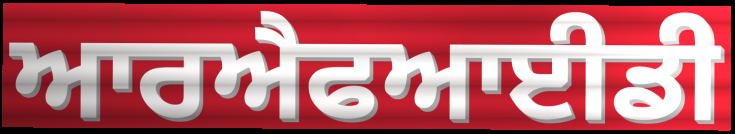
ਆਰਐਫਆਈਡੀ